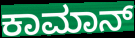
ಕಾಮಾನ್